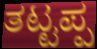
ತಟ್ಟಪ್ಪ